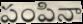
పంపినా